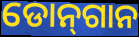
ଡୋନ୍‌ଗାନ